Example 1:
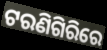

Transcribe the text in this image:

ଟରଣିଗିରିରେ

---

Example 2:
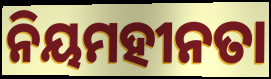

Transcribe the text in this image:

ନିୟମହୀନତା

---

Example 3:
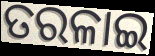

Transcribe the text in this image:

ତରଳାଇ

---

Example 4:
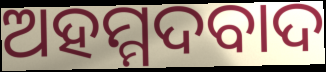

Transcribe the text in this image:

ଅହମ୍ମଦବାଦ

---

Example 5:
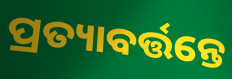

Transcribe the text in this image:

ପ୍ରତ୍ୟାବର୍ତ୍ତନ୍ତେ